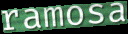
ramosa